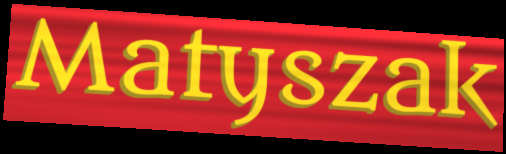
Matyszak